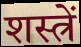
शस्त्रें